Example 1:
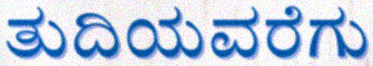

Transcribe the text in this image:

ತುದಿಯವರೆಗು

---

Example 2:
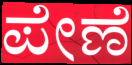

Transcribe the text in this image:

ಪೇಣೆ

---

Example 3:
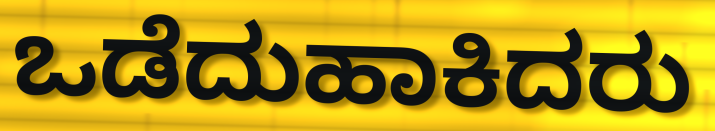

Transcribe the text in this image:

ಒಡೆದುಹಾಕಿದರು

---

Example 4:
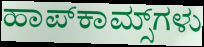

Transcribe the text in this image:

ಹಾಪ್‌ಕಾಮ್ಸ್‌ಗಳು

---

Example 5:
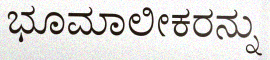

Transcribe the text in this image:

ಭೂಮಾಲೀಕರನ್ನು